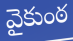
వైకుంఠ